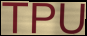
TPU